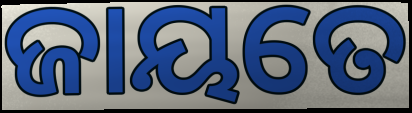
ଜାୟତେ